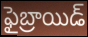
ఫైబ్రాయిడ్